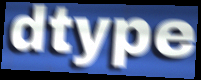
dtype